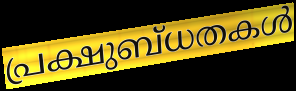
പ്രക്ഷുബ്ധതകൾ